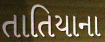
તાતિયાના